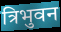
त्रिभुवन